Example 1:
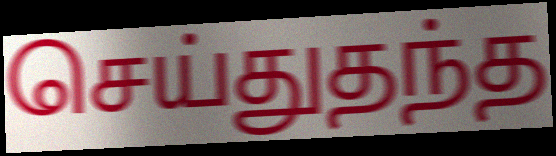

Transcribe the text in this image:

செய்துதந்த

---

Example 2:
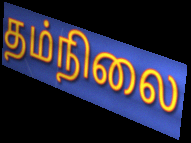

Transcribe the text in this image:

தம்நிலை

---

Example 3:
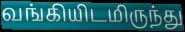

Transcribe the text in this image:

வங்கியிடமிருந்து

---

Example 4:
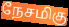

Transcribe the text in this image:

நேசமிகு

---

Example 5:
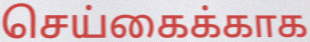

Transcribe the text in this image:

செய்கைக்காக